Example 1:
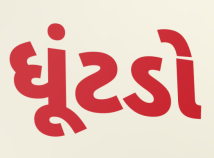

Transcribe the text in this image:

ધૂંટડો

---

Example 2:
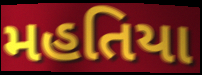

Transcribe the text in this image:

મહતિયા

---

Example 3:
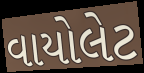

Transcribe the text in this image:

વાયોલેટ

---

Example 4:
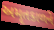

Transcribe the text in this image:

અમૃતકાળને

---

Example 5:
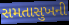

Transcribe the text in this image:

સમતાસુખની